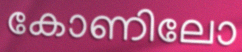
കോണിലോ